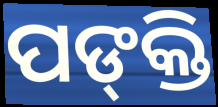
ପଙ୍‍କ୍ତି